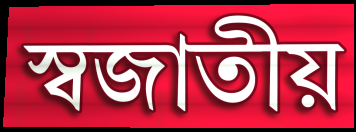
স্বজাতীয়